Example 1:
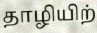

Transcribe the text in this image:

தாழியிற்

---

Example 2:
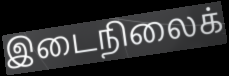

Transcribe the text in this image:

இடைநிலைக்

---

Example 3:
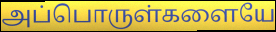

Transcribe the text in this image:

அப்பொருள்களையே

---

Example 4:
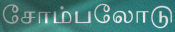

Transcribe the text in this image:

சோம்பலோடு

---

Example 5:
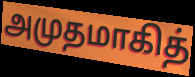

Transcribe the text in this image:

அமுதமாகித்